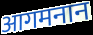
आगमनान